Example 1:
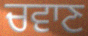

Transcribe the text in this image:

ਚਵਾਣ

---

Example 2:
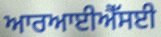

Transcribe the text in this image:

ਆਰਆਈਐੱਸਈ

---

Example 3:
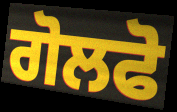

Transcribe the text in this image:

ਗੋਲਫੋ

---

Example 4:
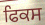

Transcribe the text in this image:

ਫਿਕਸ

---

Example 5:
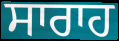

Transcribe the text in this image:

ਸਾਰਾਹ